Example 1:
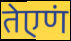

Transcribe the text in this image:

तेएणं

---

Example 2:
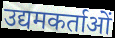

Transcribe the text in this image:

उद्यमकर्ताओं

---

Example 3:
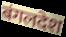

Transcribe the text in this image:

बंगलदेश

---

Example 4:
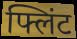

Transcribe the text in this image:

फ्लिंट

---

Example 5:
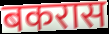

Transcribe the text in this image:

बकरास